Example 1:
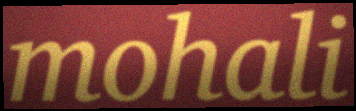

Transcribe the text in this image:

mohali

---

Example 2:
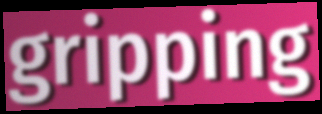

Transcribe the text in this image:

gripping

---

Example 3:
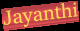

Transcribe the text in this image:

Jayanthi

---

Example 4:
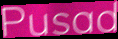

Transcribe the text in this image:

Pusad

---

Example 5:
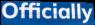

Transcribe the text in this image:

Officially